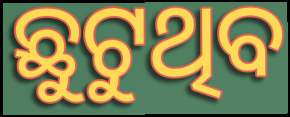
ଛୁଟୁଥିବ